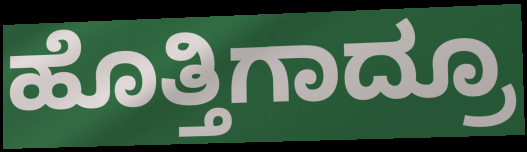
ಹೊತ್ತಿಗಾದ್ರೂ